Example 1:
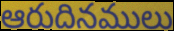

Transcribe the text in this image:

ఆరుదినములు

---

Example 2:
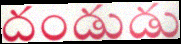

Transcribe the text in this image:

దండుడు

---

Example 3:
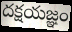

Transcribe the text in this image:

దక్షయజ్ఞం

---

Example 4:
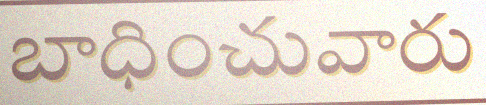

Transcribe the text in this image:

బాధించువారు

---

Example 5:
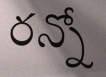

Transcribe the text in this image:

రన్నో